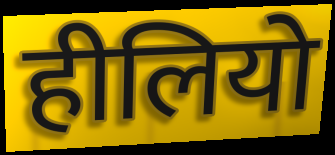
हीलियो